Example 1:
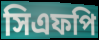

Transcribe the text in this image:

সিএফপি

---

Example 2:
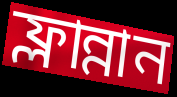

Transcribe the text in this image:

ফ্লান্নান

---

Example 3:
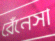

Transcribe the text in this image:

রেঁনেসা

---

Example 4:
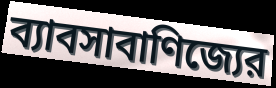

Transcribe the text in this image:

ব্যাবসাবাণিজ্যের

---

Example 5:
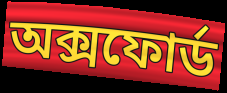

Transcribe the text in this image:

অক্সফোর্ড